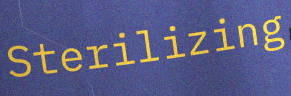
Sterilizing